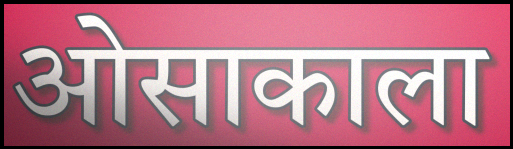
ओसाकाला